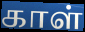
காள்